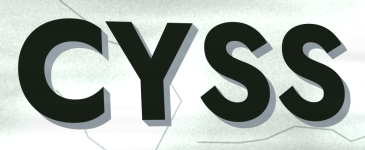
CYSS